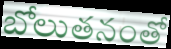
బోలుతనంతో